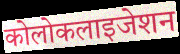
कोलोकलाइजेशन